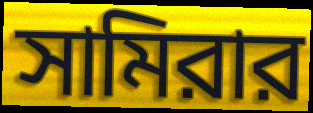
সামিরার